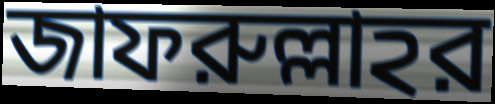
জাফরুল্লাহর